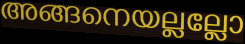
അങ്ങനെയല്ലല്ലോ